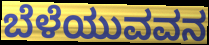
ಬೆಳೆಯುವವನ